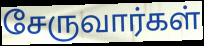
சேருவார்கள்